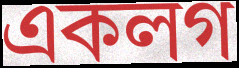
একলগ